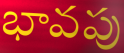
భావపు